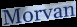
Morvan